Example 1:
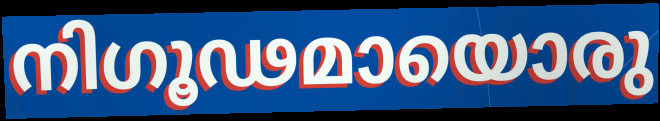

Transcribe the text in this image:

നിഗൂഢമായൊരു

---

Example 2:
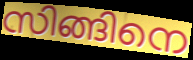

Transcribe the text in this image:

സിങ്ങിനെ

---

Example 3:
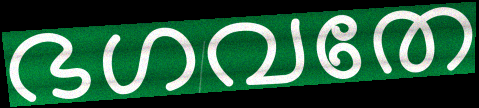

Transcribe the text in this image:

ഭഗവതേ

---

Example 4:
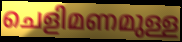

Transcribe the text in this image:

ചെളിമണമുള്ള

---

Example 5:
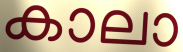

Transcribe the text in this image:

കാലാ